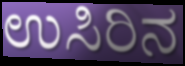
ಉಸಿರಿನ